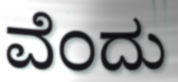
ವೆಂದು